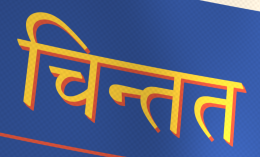
चिन्तत